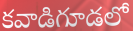
కవాడిగూడలో